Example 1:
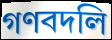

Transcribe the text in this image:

গণবদলি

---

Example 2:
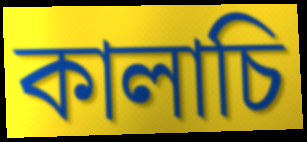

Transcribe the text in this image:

কালাচি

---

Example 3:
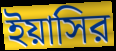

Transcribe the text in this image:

ইয়াসির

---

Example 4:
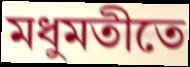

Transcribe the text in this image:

মধুমতীতে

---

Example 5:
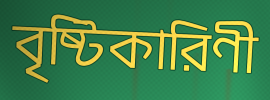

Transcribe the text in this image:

বৃষ্টিকারিণী